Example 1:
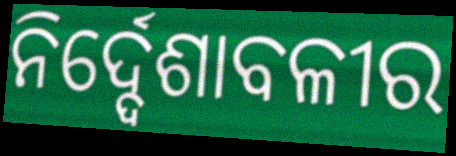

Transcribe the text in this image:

ନିର୍ଦ୍ଦେଶାବଳୀର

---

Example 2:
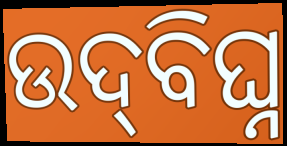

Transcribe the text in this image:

ଉଦ୍‍ବିଘ୍ନ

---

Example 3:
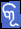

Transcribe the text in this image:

କୂ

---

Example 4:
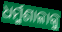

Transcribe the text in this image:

ଧର୍ମ୍ମଶାଳାକୁ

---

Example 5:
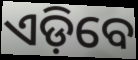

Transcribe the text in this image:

ଏଡ଼ିବେ